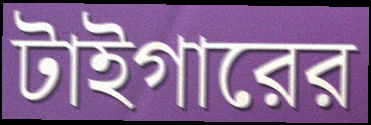
টাইগারের